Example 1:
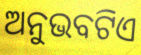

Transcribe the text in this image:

ଅନୁଭବଟିଏ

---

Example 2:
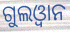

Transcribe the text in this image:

ଗୁଲଓ୍ୱାନ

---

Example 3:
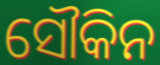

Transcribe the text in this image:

ସୌକିନ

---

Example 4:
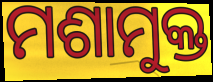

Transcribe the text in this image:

ମଶାମୁକ୍ତ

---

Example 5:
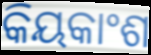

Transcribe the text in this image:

କିୟକାଂଶ